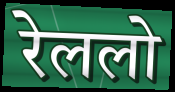
रेललो